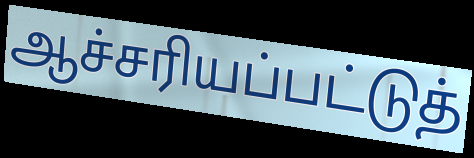
ஆச்சரியப்பட்டுத்